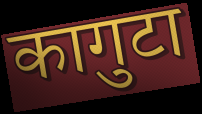
कागुटा